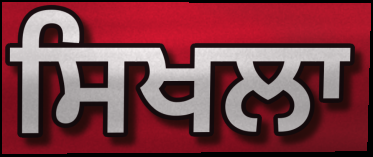
ਸਿਖਲਾ